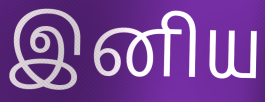
இனிய